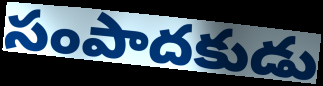
సంపాదకుడు